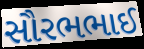
સૌરભભાઈ